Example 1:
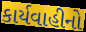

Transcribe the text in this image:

કાર્યવાહીનો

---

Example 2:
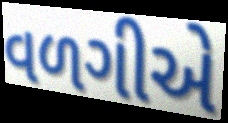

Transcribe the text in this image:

વળગીએ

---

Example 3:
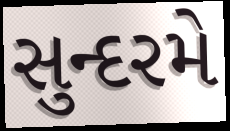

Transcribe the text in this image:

સુન્દરમે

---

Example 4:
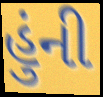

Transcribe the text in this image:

હુંની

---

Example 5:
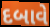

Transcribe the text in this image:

દબાવે